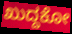
ಖುದ್ದಕೋ